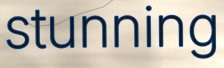
stunning